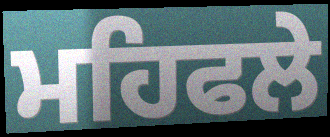
ਮਹਿਫਲੇ